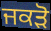
ਜਕੜੋ